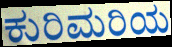
ಕುರಿಮರಿಯ